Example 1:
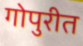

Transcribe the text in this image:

गोपुरीत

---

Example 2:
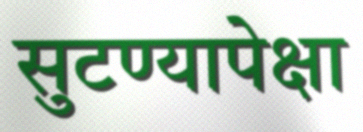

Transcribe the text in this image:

सुटण्यापेक्षा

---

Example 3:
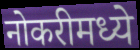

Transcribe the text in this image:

नोकरीमध्ये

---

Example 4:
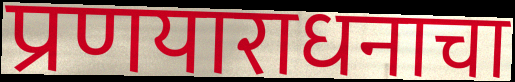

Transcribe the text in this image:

प्रणयाराधनाचा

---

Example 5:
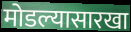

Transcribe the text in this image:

मोडल्यासारखा